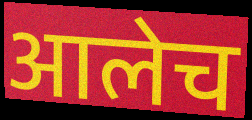
आलेच